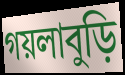
গয়লাবুড়ি